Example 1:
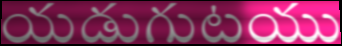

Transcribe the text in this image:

యడుగుటయు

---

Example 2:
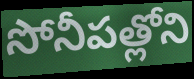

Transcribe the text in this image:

సోనీపత్లోని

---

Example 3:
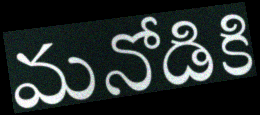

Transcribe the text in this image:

మనోడికి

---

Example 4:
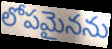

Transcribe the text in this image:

లోపమైనను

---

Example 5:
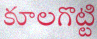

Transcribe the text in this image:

కూలగొట్టి